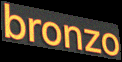
bronzo